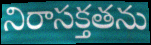
నిరాసక్తతను